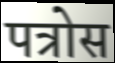
पत्रोस